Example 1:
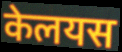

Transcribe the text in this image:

केलयस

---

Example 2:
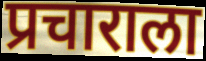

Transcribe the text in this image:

प्रचाराला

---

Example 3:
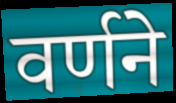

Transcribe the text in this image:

वर्णने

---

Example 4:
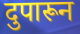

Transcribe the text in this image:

दुपारून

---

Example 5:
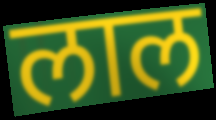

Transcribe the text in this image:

लाल